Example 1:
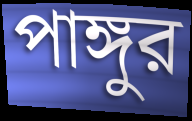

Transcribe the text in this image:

পাঙ্গুর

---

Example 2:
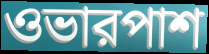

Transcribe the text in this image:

ওভারপাশ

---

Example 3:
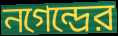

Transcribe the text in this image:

নগেন্দ্রের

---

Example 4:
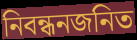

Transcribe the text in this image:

নিবন্ধনজনিত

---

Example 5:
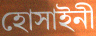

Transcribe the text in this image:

হোসাইনী